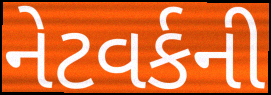
નેટવર્કની